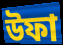
উফা